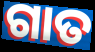
ଗାତ